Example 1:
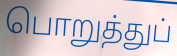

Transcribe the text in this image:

பொறுத்துப்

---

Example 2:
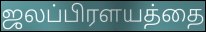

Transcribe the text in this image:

ஜலப்பிரளயத்தை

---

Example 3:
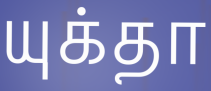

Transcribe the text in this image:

யுக்தா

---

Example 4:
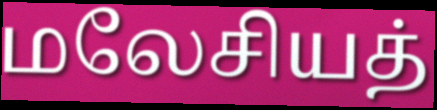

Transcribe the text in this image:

மலேசியத்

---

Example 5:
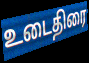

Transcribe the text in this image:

உடைதிரை